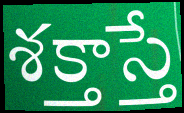
శక్తాస్తే